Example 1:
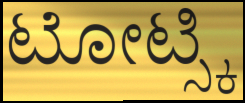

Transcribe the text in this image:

ಟೋಟ್ಸ್ಕಿ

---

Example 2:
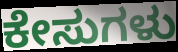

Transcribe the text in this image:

ಕೇಸುಗಳು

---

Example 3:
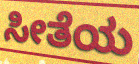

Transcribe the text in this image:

ಸೀತೆಯ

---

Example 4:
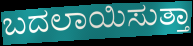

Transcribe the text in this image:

ಬದಲಾಯಿಸುತ್ತಾ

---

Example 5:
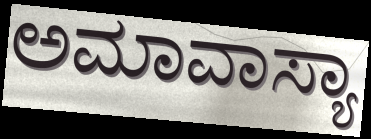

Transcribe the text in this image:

ಅಮಾವಾಸ್ಯಾ